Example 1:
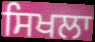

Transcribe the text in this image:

ਸਿਖਲਾ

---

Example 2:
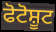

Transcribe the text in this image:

ਫੋਟੋਸ਼ੂਟ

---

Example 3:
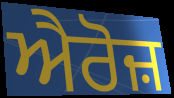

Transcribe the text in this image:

ਐਰੋਜ਼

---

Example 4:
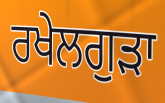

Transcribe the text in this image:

ਰਖੇਲਗੁੜਾ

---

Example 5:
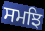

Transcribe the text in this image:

ਸਮਝਿ